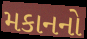
મકાનનો